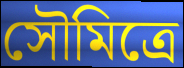
সৌমিত্রে